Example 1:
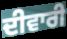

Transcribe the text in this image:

ਦੀਵਾਰੀ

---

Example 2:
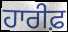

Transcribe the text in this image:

ਹਾਰੀਫ਼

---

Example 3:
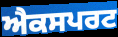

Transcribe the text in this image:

ਐਕਸਪਰਟ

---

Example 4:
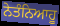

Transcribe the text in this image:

ਨੇਤੰਨਿਆਹੂ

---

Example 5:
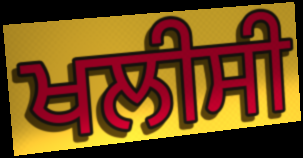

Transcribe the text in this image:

ਖਲੀਸੀ